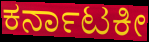
ಕರ್ನಾಟಕೀ